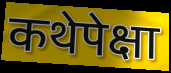
कथेपेक्षा